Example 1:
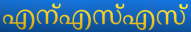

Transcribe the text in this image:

എന്എസ്എസ്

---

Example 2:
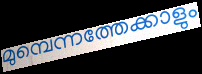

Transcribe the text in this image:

മുമ്പെന്നത്തേക്കാളും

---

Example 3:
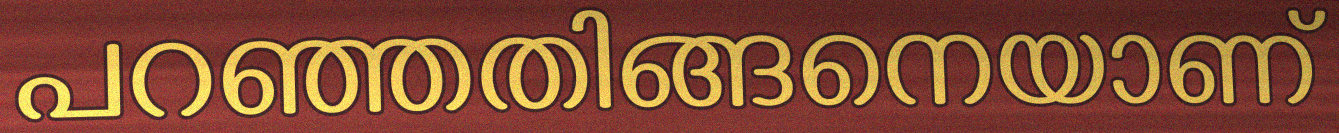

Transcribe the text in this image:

പറഞ്ഞതിങ്ങനെയാണ്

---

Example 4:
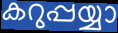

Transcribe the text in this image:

കറുപ്പയ്യാ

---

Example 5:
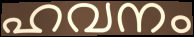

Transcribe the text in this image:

ഹവനം